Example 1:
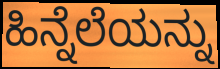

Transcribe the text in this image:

ಹಿನ್ನೆಲೆಯನ್ನು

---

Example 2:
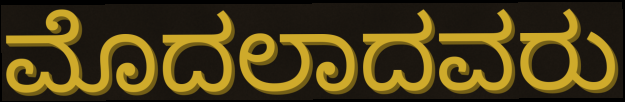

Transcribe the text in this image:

ಮೊದಲಾದವರು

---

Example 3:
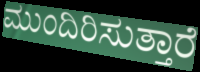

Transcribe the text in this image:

ಮುಂದಿರಿಸುತ್ತಾರೆ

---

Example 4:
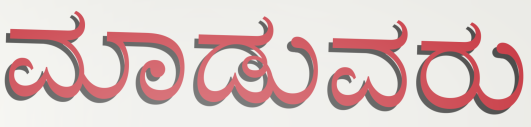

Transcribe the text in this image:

ಮಾಡುವರು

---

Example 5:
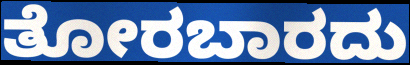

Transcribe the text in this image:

ತೋರಬಾರದು